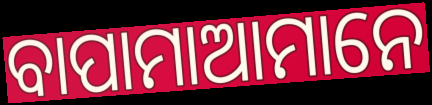
ବାପାମାଆମାନେ